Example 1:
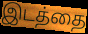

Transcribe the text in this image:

இடத்தை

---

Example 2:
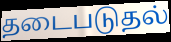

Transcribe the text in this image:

தடைபடுதல்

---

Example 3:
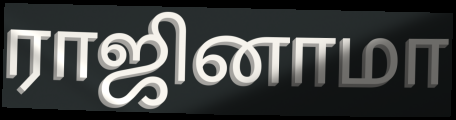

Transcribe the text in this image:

ராஜினாமா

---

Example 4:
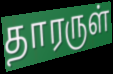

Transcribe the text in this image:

தாரருள்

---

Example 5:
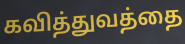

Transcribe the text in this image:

கவித்துவத்தை